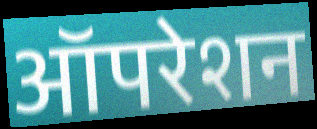
ऑपरेशन